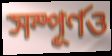
সম্পূর্ণও